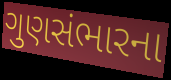
ગુણસંભારના